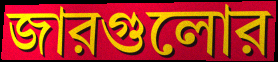
জারগুলোর